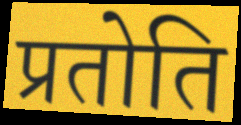
प्रतोति